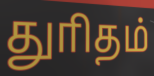
துரிதம்